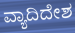
ವ್ಯಾದಿದೇಶ